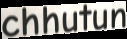
chhutun